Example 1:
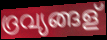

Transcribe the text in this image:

ദ്രവ്യങ്ങള്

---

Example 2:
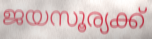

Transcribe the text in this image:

ജയസൂര്യക്ക്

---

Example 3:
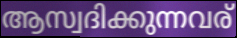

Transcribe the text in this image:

ആസ്വദിക്കുന്നവര്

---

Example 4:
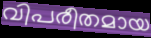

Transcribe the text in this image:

വിപരീതമായ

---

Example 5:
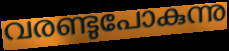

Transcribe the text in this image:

വരണ്ടുപോകുന്നു